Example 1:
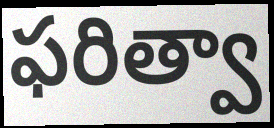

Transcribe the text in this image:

ఫరిత్వా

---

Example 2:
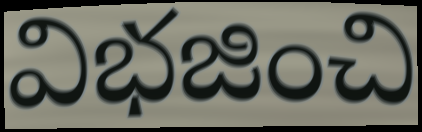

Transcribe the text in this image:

విభజించి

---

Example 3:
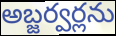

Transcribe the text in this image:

అబ్జర్వర్లను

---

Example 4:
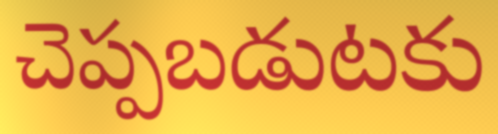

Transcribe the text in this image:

చెప్పబడుటకు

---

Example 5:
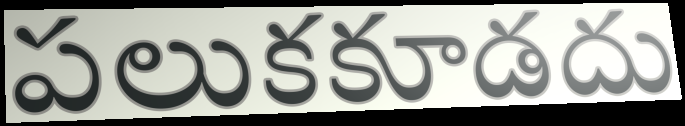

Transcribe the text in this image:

పలుకకూడదు